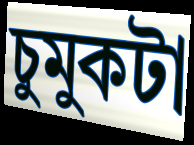
চুমুকটা